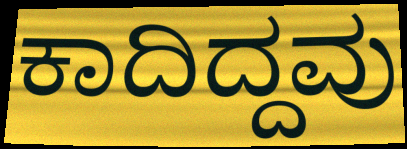
ಕಾದಿದ್ದವು